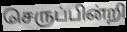
செருப்பின்றி